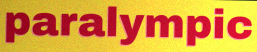
paralympic